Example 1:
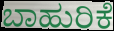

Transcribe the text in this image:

ಬಾಹುರಿಕೆ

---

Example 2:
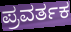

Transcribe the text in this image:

ಪ್ರವರ್ತಕ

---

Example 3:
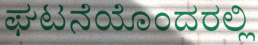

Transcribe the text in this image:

ಘಟನೆಯೊಂದರಲ್ಲಿ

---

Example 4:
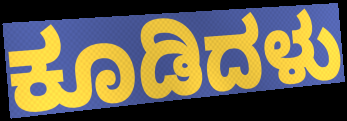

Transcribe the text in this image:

ಕೂಡಿದಳು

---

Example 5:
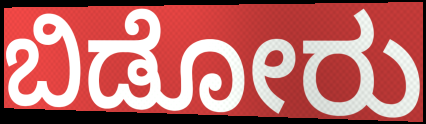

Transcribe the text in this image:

ಬಿಡೋರು